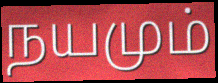
நயமும்